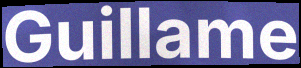
Guillame